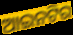
ଆଇନଟିର